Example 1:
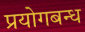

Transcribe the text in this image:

प्रयोगबन्ध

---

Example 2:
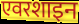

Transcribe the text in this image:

एवरशाइन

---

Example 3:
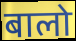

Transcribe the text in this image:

बालो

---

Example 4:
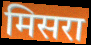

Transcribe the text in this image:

मिसरा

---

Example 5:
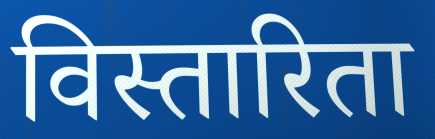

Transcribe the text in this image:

विस्तारिता